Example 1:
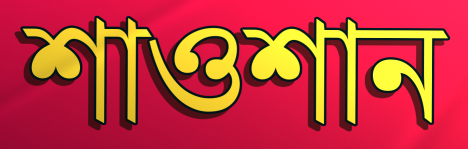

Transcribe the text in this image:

শাওশান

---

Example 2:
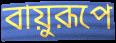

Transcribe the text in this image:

বায়ুরূপে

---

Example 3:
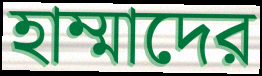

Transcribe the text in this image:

হাম্মাদের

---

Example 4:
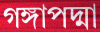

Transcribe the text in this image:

গঙ্গাপদ্মা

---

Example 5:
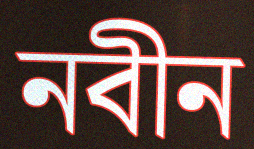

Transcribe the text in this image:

নবীন